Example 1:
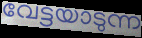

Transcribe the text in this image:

വേട്ടയാടുന്ന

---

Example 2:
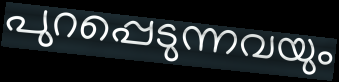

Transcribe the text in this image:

പുറപ്പെടുന്നവയും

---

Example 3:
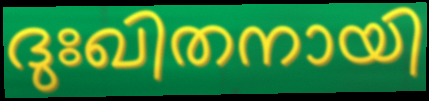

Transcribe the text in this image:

ദുഃഖിതനായി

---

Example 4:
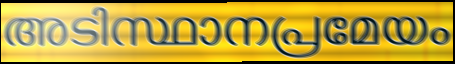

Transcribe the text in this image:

അടിസ്ഥാനപ്രമേയം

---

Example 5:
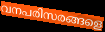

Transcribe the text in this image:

വനപരിസരങ്ങളെ